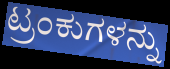
ಟ್ರಂಕುಗಳನ್ನು